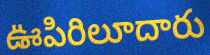
ఊపిరిలూదారు